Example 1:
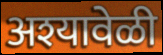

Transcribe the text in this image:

अश्यावेळी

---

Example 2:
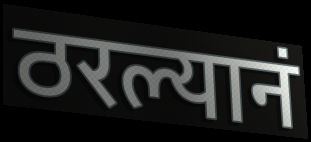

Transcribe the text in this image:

ठरल्यानं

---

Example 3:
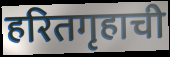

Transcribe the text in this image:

हरितगृहाची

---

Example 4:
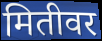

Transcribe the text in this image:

मितीवर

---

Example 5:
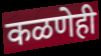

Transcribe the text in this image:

कळणेही